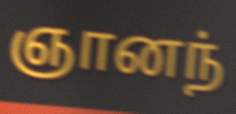
ஞானந்